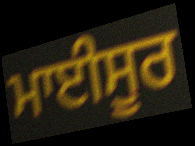
ਮਾਈਸੂਰ